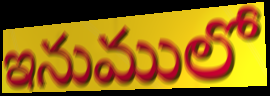
ఇనుములో